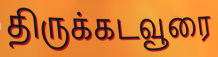
திருக்கடவூரை